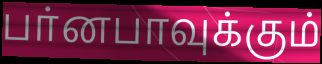
பர்னபாவுக்கும்